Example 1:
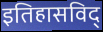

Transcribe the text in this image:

इतिहासविद्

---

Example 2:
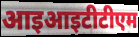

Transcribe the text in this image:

आइआइटीटीएम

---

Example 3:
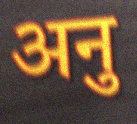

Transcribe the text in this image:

अनु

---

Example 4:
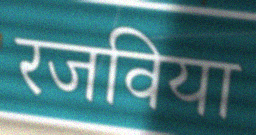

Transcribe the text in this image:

रजविया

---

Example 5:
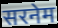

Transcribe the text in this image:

सरनेम